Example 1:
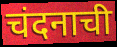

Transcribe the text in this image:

चंदनाची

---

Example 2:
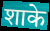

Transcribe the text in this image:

शाके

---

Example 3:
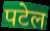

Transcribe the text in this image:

पटेल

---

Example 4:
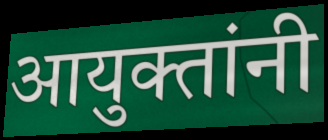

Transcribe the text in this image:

आयुक्तांनी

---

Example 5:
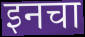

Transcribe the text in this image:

इनचा